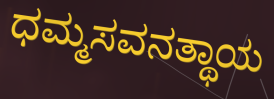
ಧಮ್ಮಸವನತ್ಥಾಯ